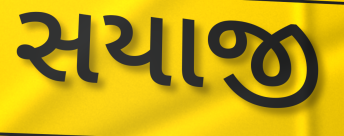
સયાજી